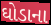
ઘોડાના